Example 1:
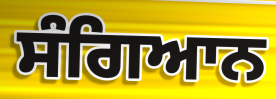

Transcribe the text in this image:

ਸੰਗਿਆਨ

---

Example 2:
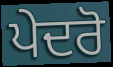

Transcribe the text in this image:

ਪੇਦਰੋ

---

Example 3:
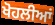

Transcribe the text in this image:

ਖੋਹਲੀਆਂ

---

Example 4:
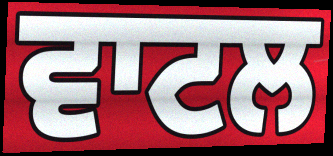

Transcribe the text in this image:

ਵਾਟਲ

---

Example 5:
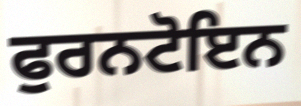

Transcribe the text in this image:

ਫੁਰਨਟੋਇਨ